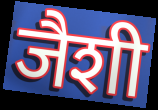
जैशी